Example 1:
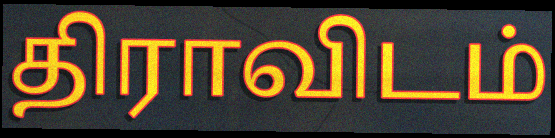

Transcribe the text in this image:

திராவிடம்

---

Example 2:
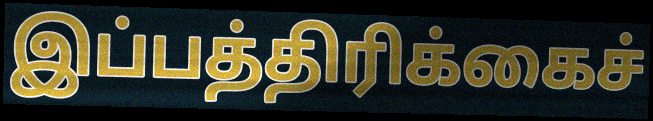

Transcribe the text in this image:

இப்பத்திரிக்கைச்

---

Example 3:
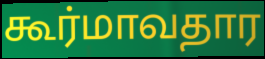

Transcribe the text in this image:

கூர்மாவதார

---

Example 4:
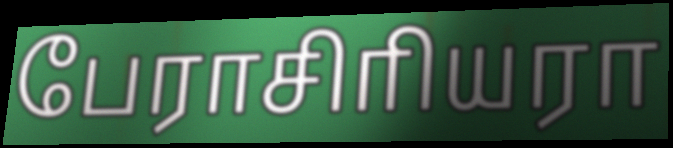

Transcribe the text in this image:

பேராசிரியரா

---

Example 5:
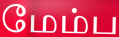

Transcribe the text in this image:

மேம்ப